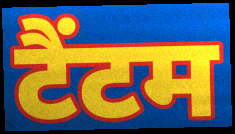
टैंटम